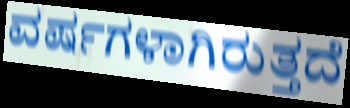
ವರ್ಷಗಳಾಗಿರುತ್ತದೆ